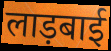
लाड़बाई